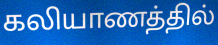
கலியாணத்தில்